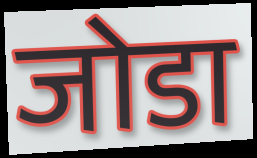
जोडा